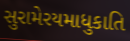
સુરામેરયમાધુકાતિ